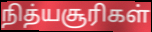
நித்யசூரிகள்